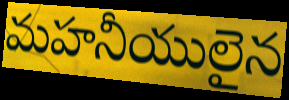
మహనీయులైన